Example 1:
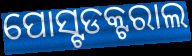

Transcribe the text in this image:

ପୋସ୍ଟଡକ୍ଟରାଲ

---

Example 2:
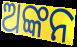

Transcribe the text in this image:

ଅଙ୍କନ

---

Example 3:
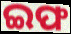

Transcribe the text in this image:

ଇଫ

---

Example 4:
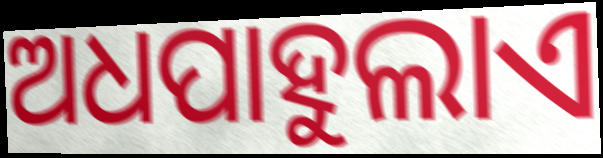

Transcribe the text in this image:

ଅଧପାହୁଲାଏ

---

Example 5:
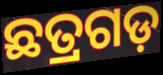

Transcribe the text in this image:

ଛତ୍ରଗଡ଼